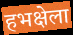
हभक्षेला